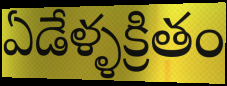
ఏడేళ్ళక్రితం